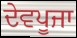
ਦੇਵਪੂਜਾ